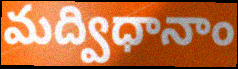
మద్విధానాం